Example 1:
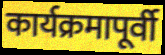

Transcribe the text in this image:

कार्यक्रमापूर्वी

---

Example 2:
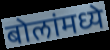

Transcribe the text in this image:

बोलांमध्ये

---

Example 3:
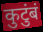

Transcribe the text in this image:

कुटुंबं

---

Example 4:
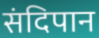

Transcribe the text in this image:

संदिपान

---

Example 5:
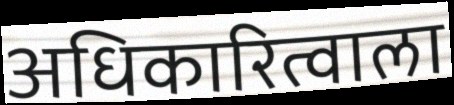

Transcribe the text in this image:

अधिकारित्वाला